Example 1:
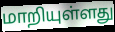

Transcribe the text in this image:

மாறியுள்ளது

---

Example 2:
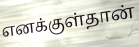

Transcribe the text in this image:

எனக்குள்தான்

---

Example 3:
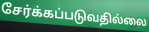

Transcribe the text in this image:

சேர்க்கப்படுவதில்லை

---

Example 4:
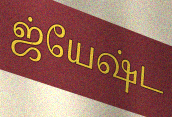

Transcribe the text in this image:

ஜ்யேஷ்ட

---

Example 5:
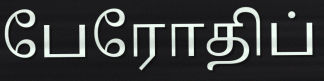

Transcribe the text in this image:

பேரோதிப்